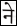
ने